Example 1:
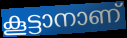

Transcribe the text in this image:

കൂട്ടാനാണ്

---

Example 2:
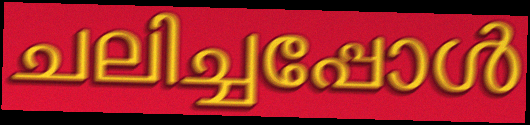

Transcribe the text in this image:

ചലിച്ചപ്പോൾ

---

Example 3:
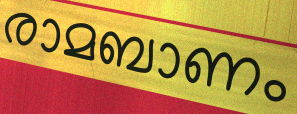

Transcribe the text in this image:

രാമബാണം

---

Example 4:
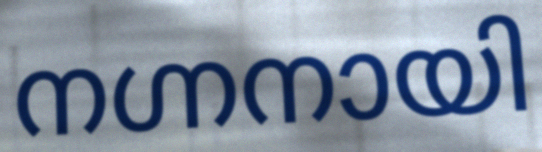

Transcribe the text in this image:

നഗ്നനായി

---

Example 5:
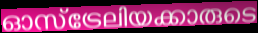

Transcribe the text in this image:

ഓസ്ട്രേലിയക്കാരുടെ